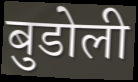
बुडोली